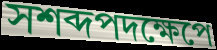
সশব্দপদক্ষেপে